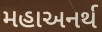
મહાઅનર્થ